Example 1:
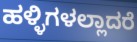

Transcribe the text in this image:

ಹಳ್ಳಿಗಳಲ್ಲಾದರೆ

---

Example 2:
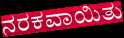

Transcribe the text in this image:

ನರಕವಾಯಿತು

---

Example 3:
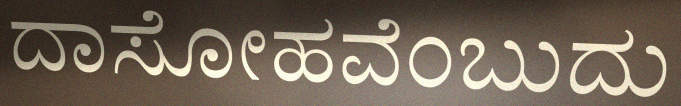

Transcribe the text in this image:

ದಾಸೋಹವೆಂಬುದು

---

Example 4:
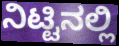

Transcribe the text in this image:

ನಿಟ್ಟಿನಲ್ಲಿ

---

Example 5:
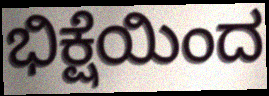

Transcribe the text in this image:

ಭಿಕ್ಷೆಯಿಂದ